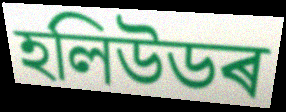
হলিউডৰ